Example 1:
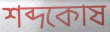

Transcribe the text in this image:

শব্দকোষ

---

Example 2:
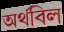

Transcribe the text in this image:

অর্থবিল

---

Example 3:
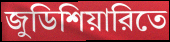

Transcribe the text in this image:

জুডিশিয়ারিতে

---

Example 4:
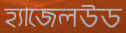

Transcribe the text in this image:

হ্যাজেলউড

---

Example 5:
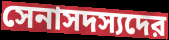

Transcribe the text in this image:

সেনাসদস্যদের